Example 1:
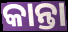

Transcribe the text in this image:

କାନ୍ତା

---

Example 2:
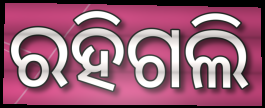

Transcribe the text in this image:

ରହିଗଲି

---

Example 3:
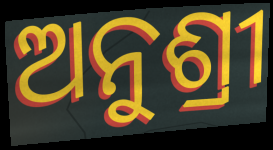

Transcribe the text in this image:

ଅନୁଶ୍ରୀ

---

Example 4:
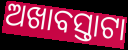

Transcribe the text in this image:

ଅଖାବସ୍ତାଟା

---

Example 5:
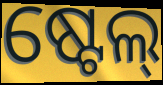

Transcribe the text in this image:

ଷ୍ଟେଲ୍